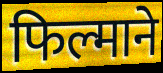
फिल्‍माने